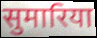
सुमारिया